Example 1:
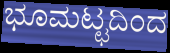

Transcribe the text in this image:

ಭೂಮಟ್ಟದಿಂದ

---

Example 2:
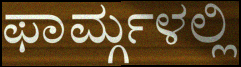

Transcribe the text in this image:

ಫಾರ್ಮ್ಗಳಲ್ಲಿ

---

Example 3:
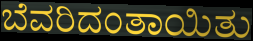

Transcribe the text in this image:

ಬೆವರಿದಂತಾಯಿತು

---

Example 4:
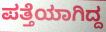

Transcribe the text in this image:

ಪತ್ತೆಯಾಗಿದ್ದ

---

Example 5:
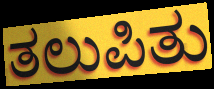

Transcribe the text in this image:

ತಲುಪಿತು